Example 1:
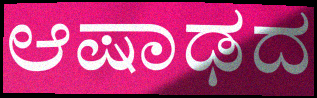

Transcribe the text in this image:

ಆಷಾಢದ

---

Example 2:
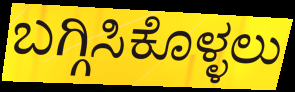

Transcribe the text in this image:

ಬಗ್ಗಿಸಿಕೊಳ್ಳಲು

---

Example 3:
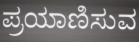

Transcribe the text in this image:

ಪ್ರಯಾಣಿಸುವ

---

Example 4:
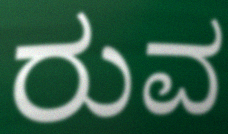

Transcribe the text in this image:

ರುವ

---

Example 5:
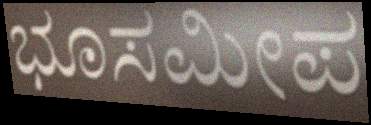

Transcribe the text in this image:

ಭೂಸಮೀಪ